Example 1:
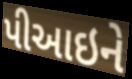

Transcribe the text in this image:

પીઆઇને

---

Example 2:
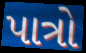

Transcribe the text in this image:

પાત્રો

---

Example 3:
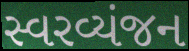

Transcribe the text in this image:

સ્વરવ્યંજન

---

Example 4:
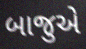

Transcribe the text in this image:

બાજુએ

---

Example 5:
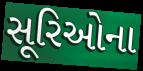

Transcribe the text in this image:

સૂરિઓના